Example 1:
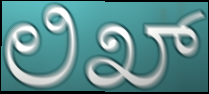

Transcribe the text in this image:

ಲಿಖ್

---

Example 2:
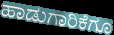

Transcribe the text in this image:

ಹಾಡುಗಾರಿಕೆಗೂ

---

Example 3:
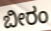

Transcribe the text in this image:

ಬೀರಂ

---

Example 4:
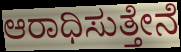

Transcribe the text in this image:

ಆರಾಧಿಸುತ್ತೇನೆ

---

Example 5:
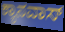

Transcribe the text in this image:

ಕ್ಯಾನವಾಸ್